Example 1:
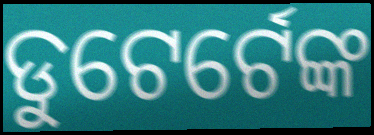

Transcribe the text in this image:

ଡୁଟେର୍ଟେଙ୍କ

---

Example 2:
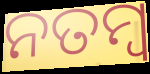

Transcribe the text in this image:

ନତମ୍ବ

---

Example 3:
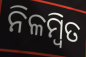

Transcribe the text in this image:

ନିଳମ୍ବିତ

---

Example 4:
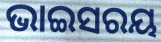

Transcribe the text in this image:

ଭାଇସରୟ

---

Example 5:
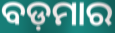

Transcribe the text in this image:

ବଡ଼ମାର